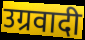
उग्रवादी